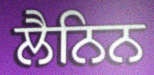
ਲੈਨਿਨ